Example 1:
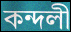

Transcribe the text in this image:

কন্দলী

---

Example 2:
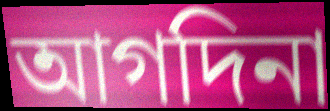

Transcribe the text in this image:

আগদিনা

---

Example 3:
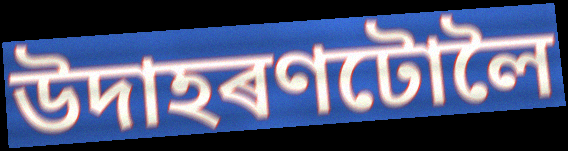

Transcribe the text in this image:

উদাহৰণটোলৈ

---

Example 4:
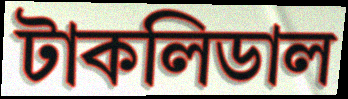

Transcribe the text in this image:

টাকলিডাল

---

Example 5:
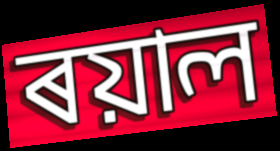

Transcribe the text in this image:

ৰয়াল